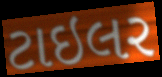
ટાઇલર